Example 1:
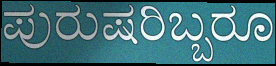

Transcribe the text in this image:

ಪುರುಷರಿಬ್ಬರೂ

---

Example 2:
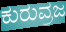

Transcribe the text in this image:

ಕುರುವ್ರಜ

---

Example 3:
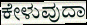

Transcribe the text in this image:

ಕೇಳುವುದಾ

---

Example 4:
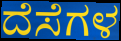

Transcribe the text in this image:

ದೆಸೆಗಳ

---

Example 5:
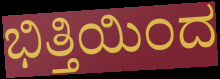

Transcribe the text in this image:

ಭಿತ್ತಿಯಿಂದ